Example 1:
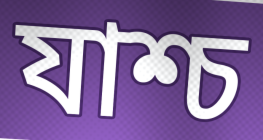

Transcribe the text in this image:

যাশ্চ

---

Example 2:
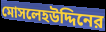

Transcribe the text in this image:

মোসলেহউদ্দিনের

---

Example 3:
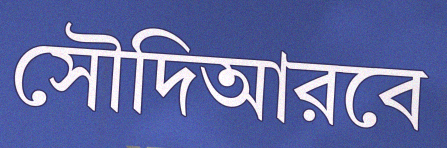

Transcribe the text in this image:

সৌদিআরবে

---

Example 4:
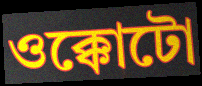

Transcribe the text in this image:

ওক্কোটো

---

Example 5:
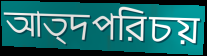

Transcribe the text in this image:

আত্দপরিচয়